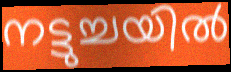
നട്ടുച്ചയിൽ